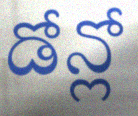
డోన్లో